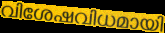
വിശേഷവിധമായി